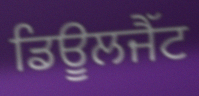
ਡਿਊਲਜੈੱਟ